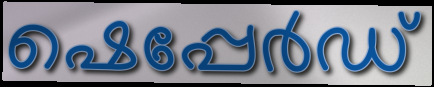
ഷെപ്പേർഡ്